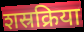
शस्रक्रिया